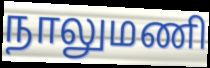
நாலுமணி